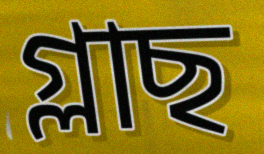
গ্লাছ